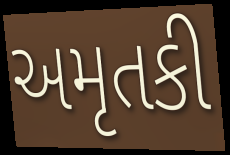
અમૃતકી